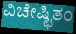
ವಿಚೇಷ್ಟಿತಂ